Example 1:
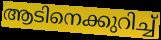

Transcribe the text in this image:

ആടിനെക്കുറിച്ച്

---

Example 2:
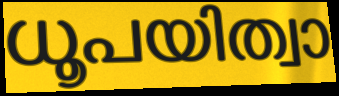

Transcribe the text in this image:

ധൂപയിത്വാ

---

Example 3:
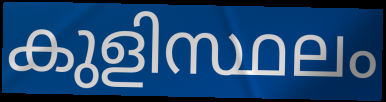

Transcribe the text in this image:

കുളിസ്ഥലം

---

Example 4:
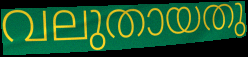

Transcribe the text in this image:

വലുതായതു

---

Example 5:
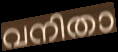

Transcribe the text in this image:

വനിതാ